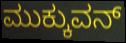
ಮುಕ್ಕುವನ್